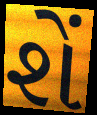
શેં